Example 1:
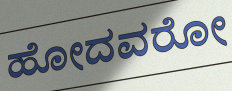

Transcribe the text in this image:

ಹೋದವರೋ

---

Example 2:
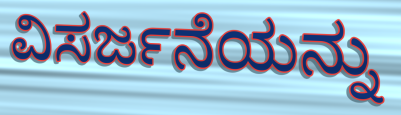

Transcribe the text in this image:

ವಿಸರ್ಜನೆಯನ್ನು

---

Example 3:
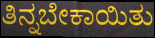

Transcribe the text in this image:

ತಿನ್ನಬೇಕಾಯಿತು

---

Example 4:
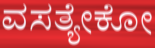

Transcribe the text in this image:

ವಸತ್ಯೇಕೋ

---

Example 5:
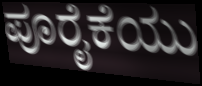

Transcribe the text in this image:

ಪೂರೈಕೆಯು